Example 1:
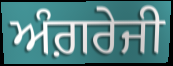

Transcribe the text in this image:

ਅੰਗ਼ਰੇਜੀ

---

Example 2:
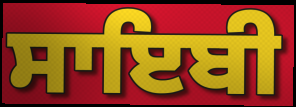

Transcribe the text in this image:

ਸਾਇਬੀ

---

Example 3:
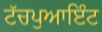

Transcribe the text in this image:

ਟੱਚਪੁਆਇੰਟ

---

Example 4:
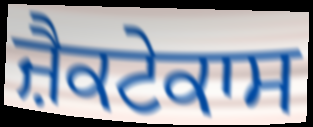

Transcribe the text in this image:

ਜ਼ੈਕਟੇਕਾਸ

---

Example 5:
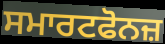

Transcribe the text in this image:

ਸਮਾਰਟਫੋਨਜ਼